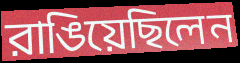
রাঙিয়েছিলেন